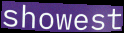
showest